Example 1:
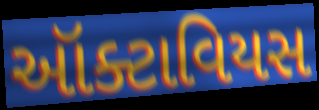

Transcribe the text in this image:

ઑક્ટાવિયસ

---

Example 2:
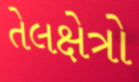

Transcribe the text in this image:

તેલક્ષેત્રો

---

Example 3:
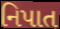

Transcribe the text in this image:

નિપાત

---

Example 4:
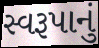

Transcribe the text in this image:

સ્વરૂપાનું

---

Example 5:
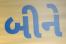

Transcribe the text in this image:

બીને